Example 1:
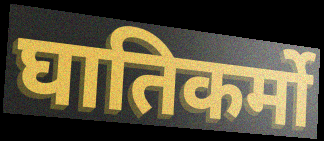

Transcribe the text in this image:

घातिकर्मो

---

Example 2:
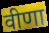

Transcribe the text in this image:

वीणा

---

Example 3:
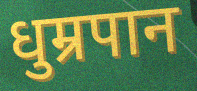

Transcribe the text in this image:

धुम्रपान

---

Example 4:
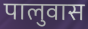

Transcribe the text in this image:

पालुवास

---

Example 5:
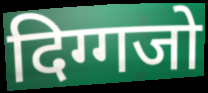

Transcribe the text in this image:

दिग्गजो